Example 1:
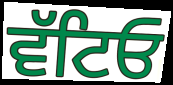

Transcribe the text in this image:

ਵੱਟਿਓ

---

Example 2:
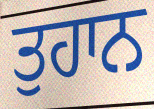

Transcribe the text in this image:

ਤੁਹਾਨ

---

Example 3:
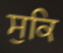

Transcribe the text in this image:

ਸੁਕਿ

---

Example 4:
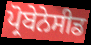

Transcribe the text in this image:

ਪ੍ਰੋਬੇਨੇਸੀਡ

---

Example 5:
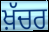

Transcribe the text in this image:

ਖ਼ੱਚਰ